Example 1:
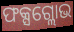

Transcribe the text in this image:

ଫକ୍ସଗ୍ଲୋଭ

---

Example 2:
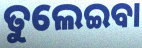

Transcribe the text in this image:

ତୁଲେଇବା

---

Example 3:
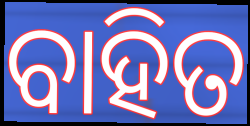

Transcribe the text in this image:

ବାହିତ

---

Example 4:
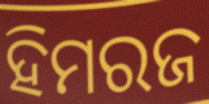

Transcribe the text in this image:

ହିମରଜ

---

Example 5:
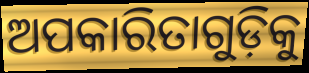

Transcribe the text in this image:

ଅପକାରିତାଗୁଡ଼ିକୁ